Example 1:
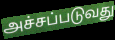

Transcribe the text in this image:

அச்சப்படுவது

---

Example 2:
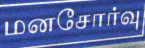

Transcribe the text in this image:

மனசோர்வு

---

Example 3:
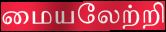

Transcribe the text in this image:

மையலேற்றி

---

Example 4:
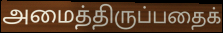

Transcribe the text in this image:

அமைத்திருப்பதைக்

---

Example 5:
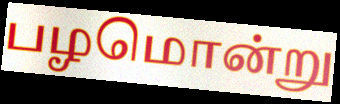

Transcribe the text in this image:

பழமொன்று